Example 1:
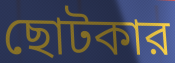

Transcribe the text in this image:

ছোটকার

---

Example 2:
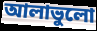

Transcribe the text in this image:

আলাভুলো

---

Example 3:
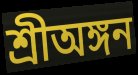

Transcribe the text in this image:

শ্রীঅঙ্গন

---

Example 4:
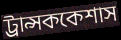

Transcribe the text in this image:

ট্রান্সককেশাস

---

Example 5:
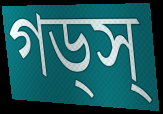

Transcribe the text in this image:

গড্স্